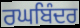
ਰਘਬਿੰਦਰ